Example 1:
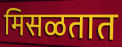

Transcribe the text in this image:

मिसळतात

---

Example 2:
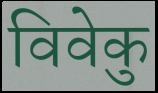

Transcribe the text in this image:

विवेकु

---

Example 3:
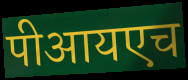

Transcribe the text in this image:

पीआयएच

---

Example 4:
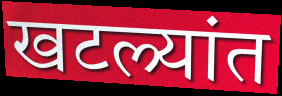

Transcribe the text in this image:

खटल्यांत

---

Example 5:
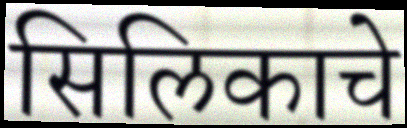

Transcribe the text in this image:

सिलिकाचे